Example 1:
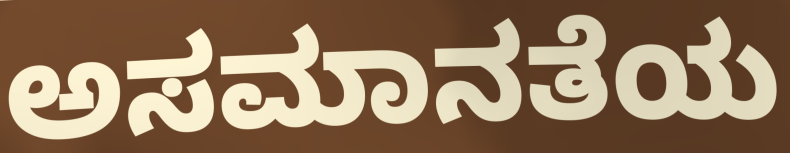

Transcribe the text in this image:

ಅಸಮಾನತೆಯ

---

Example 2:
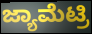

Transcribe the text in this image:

ಜ್ಯಾಮೆಟ್ರಿ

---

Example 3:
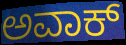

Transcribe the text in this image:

ಅವಾಕ್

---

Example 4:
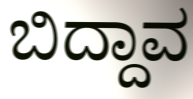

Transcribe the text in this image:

ಬಿದ್ದಾವ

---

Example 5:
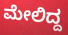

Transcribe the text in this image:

ಮೇಲಿದ್ದ